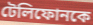
টেলিফোনকে